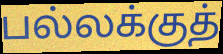
பல்லக்குத்